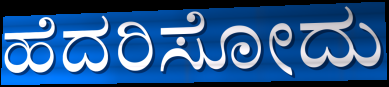
ಹೆದರಿಸೋದು